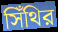
সিঁথির